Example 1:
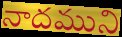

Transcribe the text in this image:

నాదముని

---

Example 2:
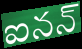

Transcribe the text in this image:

ఐనన్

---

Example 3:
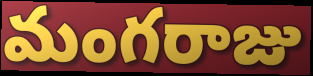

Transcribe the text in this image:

మంగరాజు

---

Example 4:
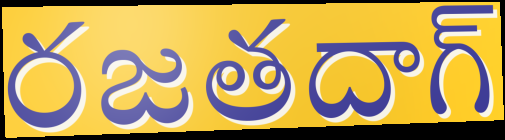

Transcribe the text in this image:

రజతదాగ్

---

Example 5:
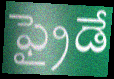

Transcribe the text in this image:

ఫ్రైడే